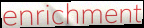
enrichment